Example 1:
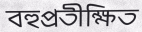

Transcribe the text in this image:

বহুপ্রতীক্ষিত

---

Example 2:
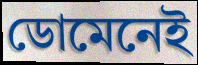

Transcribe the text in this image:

ডোমেনেই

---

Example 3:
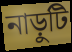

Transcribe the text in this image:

নাড়ুটি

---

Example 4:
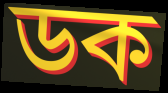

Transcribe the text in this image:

ডক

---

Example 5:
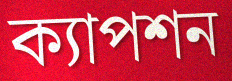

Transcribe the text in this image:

ক্যাপশন